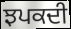
ਝਪਕਦੀ